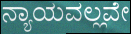
ನ್ಯಾಯವಲ್ಲವೇ